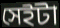
সেইটা